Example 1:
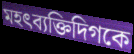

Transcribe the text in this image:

মহৎব্যক্তিদিগকে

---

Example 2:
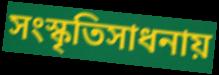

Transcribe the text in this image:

সংস্কৃতিসাধনায়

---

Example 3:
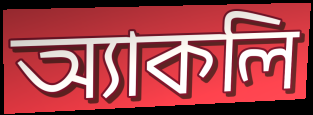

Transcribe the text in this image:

অ্যাকলি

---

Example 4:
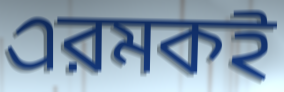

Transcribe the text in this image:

এরমকই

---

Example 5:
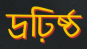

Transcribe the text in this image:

দ্রঢ়িষ্ঠ